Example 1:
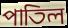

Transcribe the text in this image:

পাতিল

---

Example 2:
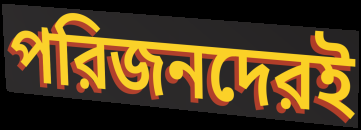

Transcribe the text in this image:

পরিজনদেরই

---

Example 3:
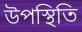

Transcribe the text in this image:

উপস্থিতি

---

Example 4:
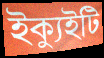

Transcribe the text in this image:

ইক্যুইটি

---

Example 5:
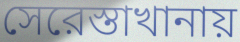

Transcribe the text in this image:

সেরেস্তাখানায়